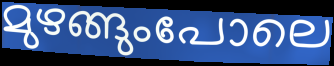
മുഴങ്ങുംപോലെ